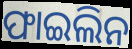
ଫାଇଲିନ